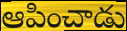
ఆపించాడు